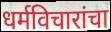
धर्मविचारांचा